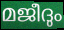
മജീദും